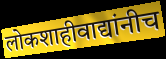
लोकशाहीवाद्यांनीच